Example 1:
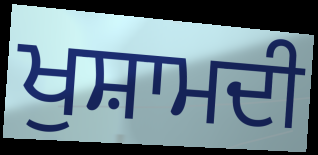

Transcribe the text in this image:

ਖੁਸ਼ਾਮਦੀ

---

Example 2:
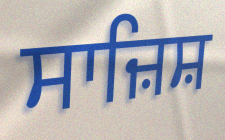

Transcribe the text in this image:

ਸਾਜ਼ਿਸ਼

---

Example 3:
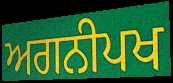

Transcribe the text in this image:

ਅਗਨੀਪਖ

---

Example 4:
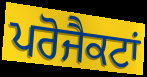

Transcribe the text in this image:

ਪਰੋਜੈਕਟਾਂ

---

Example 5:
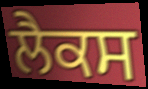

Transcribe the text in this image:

ਲੈਕਸ